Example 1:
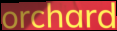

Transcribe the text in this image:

orchard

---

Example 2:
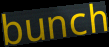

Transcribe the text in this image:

bunch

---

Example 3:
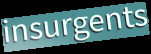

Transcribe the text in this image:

insurgents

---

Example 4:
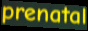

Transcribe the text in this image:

prenatal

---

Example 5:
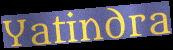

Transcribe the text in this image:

Yatindra